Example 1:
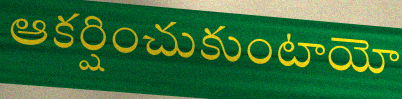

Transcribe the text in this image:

ఆకర్షించుకుంటాయో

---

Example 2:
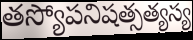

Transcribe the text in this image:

తస్యోపనిషత్సత్యస్య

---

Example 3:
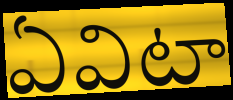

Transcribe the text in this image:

ఏవిటా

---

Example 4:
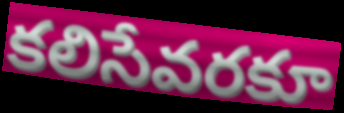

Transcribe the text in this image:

కలిసేవరకూ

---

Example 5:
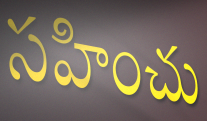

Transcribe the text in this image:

సహించు